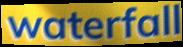
waterfall